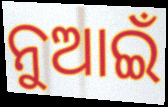
ନୁଆଇଁ